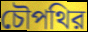
চৌপথির